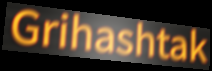
Grihashtak